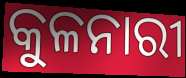
କୁଳନାରୀ